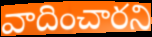
వాదించారని